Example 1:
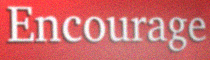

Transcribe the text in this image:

Encourage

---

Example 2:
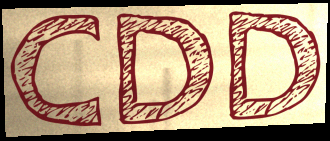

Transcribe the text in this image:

CDD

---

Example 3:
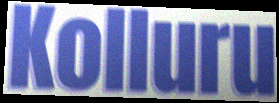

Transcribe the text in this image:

Kolluru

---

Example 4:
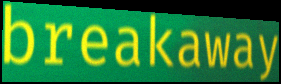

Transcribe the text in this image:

breakaway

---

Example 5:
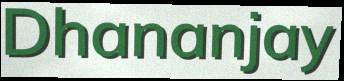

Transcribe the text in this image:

Dhananjay